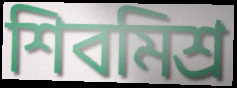
শিবমিশ্র